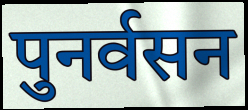
पुनर्वसन